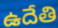
ఉదేతి